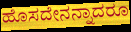
ಹೊಸದೇನನ್ನಾದರೂ